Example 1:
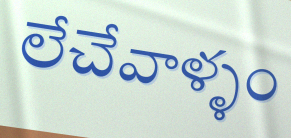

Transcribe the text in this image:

లేచేవాళ్ళం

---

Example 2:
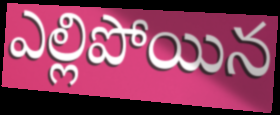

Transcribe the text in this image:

ఎల్లిపోయిన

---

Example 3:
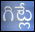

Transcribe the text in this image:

గిట్లే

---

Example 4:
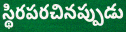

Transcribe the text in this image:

స్థిరపరచినప్పుడు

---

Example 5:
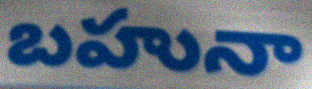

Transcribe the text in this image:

బహునా